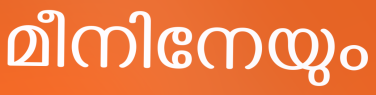
മീനിനേയും